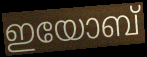
ഇയോബ്